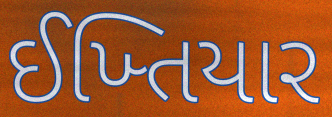
ઈખ્તિયાર